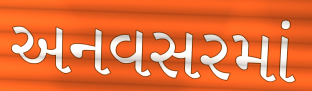
અનવસરમાં